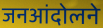
जनआंदोलने